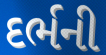
દર્ભની